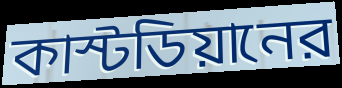
কাস্টডিয়ানের